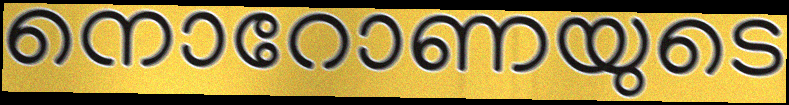
നൊറോണയുടെ